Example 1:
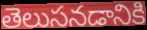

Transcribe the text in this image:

తెలుసనడానికి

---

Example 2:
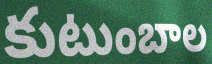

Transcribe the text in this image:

కుటుంబాల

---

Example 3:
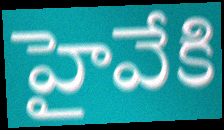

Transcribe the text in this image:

హైవేకి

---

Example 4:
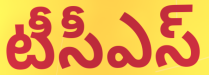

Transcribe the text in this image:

టీసీఎస్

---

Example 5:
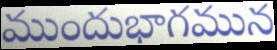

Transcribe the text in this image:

ముందుభాగమున